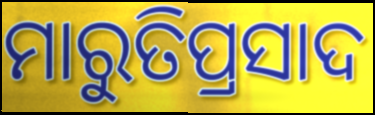
ମାରୁତିପ୍ରସାଦ